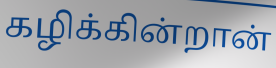
கழிக்கின்றான்